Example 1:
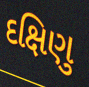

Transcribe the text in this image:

દક્ષિણુ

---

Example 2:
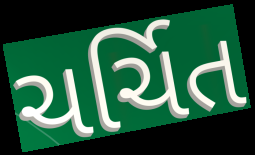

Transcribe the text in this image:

ચર્ચિત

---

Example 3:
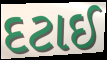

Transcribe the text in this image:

દટાઈ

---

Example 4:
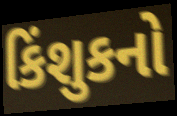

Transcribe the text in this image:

કિંશુકનો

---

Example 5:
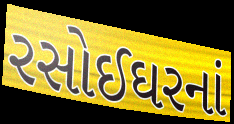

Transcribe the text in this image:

રસોઈઘરનાં